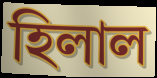
হিলাল